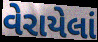
વેરાયેલાં